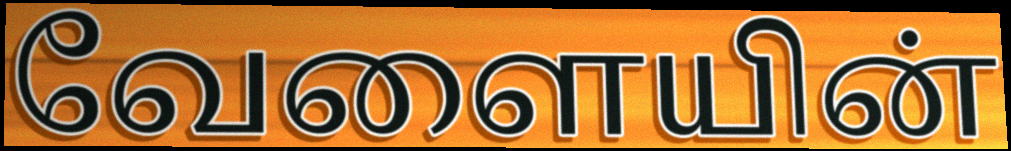
வேளையின்